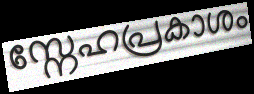
സ്നേഹപ്രകാശം